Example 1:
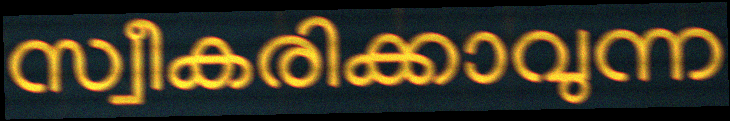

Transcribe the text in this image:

സ്വീകരിക്കാവുന്ന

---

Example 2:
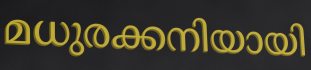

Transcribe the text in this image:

മധുരക്കനിയായി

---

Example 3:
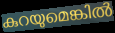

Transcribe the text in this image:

കുറയുമെങ്കിൽ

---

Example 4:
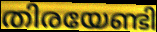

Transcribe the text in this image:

തിരയേണ്ടി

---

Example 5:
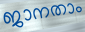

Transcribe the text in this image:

ജാനതാം